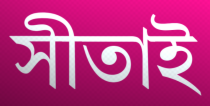
সীতাই